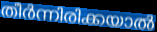
തീർന്നിരിക്കയാൽ